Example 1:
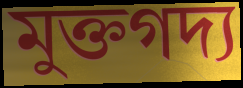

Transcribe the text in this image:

মুক্তগদ্য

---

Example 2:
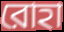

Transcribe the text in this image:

রোহা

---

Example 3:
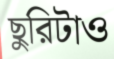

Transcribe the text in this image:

ছুরিটাও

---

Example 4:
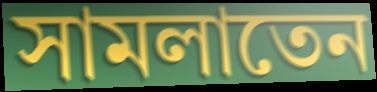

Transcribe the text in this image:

সামলাতেন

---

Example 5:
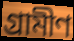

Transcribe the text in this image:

গ্রামীণ